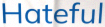
Hateful